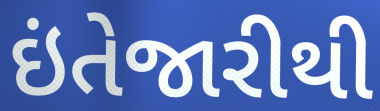
ઇંતેજારીથી